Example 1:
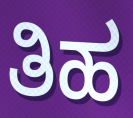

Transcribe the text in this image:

ತಿಹ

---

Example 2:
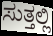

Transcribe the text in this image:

ಸುತ್ತಲ್ಲಿ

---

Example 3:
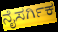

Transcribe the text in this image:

ನೈಸರ್ಗಿಕ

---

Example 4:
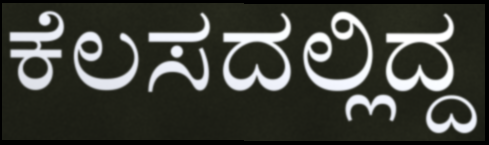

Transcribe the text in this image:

ಕೆಲಸದಲ್ಲಿದ್ದ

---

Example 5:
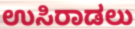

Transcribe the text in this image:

ಉಸಿರಾಡಲು